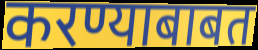
करण्याबाबत